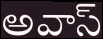
అవాస్